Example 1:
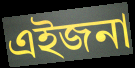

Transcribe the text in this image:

এইজনা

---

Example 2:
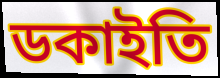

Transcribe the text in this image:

ডকাইতি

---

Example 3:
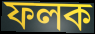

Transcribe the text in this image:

ফলক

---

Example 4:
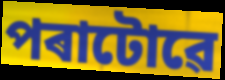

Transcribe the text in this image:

পৰাটোৱে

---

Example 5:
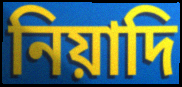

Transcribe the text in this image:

নিয়াদি